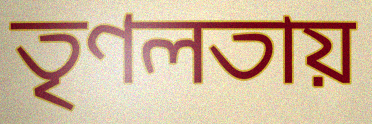
তৃণলতায়